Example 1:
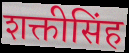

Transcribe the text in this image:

शक्तीसिंह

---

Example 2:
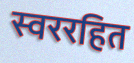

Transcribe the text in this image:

स्वररहित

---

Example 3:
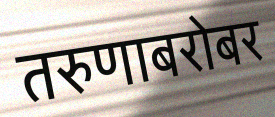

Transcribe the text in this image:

तरुणाबरोबर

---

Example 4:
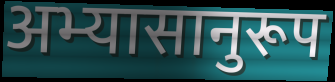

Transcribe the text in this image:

अभ्यासानुरूप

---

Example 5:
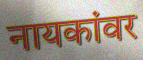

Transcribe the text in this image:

नायकांवर